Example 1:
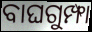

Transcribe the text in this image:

ବାଘଗୁମ୍ଫା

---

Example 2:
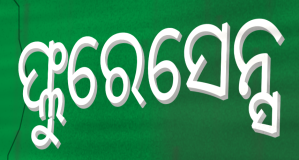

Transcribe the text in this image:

ଫ୍ଲୁରେସେନ୍ସ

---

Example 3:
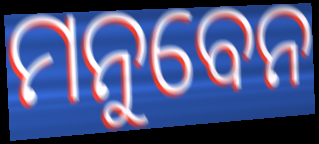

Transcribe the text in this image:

ମନୁବେନ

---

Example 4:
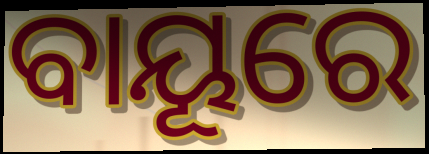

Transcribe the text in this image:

ବାୟୂରେ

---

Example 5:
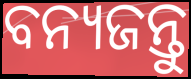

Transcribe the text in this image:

ବନ୍ୟଜନ୍ତୁ